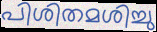
പിശിതമശിച്ചു